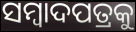
ସମ୍ବାଦପତ୍ରକୁ